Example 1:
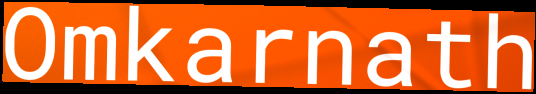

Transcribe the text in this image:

Omkarnath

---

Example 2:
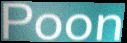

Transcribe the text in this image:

Poon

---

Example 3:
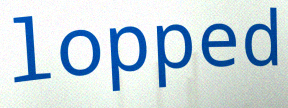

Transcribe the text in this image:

lopped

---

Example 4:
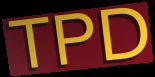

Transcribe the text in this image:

TPD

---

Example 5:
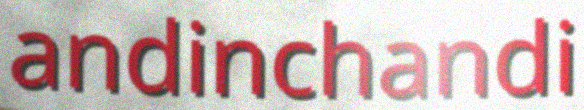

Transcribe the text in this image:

andinchandi